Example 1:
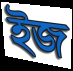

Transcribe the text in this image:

ইজ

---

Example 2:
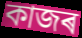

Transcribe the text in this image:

কাজৰ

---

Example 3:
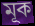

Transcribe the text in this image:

মূক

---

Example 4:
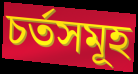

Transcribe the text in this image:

চৰ্তসমূহ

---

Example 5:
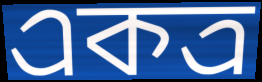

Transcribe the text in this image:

একত্ৰ